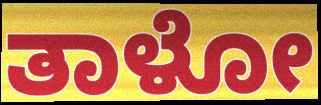
ತಾಳೋ